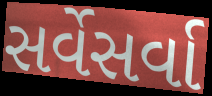
સર્વેસર્વા